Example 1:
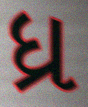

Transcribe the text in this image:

ધ્ર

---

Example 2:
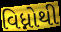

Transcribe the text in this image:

વિધ્નોથી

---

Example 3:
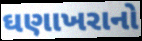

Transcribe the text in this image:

ઘણાખરાનો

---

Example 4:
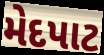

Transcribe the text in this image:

મેદપાટ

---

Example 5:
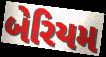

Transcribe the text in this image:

બેરિયમ